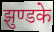
झुण्डके